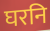
घरनि